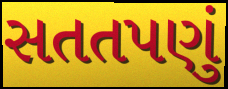
સતતપણું